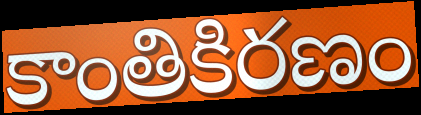
కాంతికిరణం